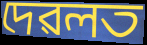
দেৱলত